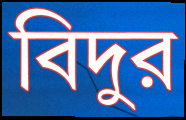
বিদুর